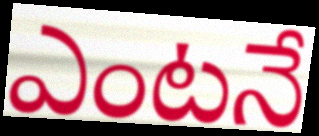
ఎంటనే